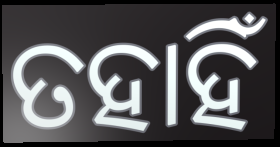
ତହାହିଁ